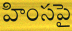
హింసపై